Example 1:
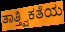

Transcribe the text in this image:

ತಾತ್ತ್ವಿಕತೆಯ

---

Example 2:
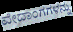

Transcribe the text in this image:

ವೇದಾಂಗಗಳನ್ನು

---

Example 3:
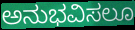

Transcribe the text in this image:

ಅನುಭವಿಸಲೂ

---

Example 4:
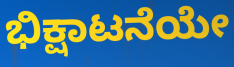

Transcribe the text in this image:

ಭಿಕ್ಷಾಟನೆಯೇ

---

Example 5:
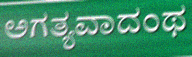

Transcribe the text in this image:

ಅಗತ್ಯವಾದಂಥ